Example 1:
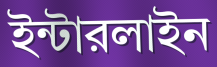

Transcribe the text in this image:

ইন্টারলাইন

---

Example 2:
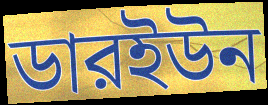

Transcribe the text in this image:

ডারইউন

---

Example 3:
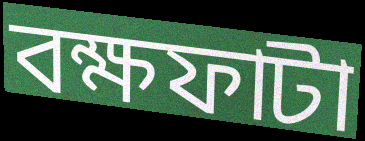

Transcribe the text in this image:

বক্ষফাটা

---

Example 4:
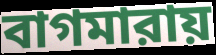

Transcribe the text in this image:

বাগমারায়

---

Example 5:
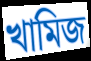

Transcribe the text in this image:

খামিজ